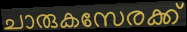
ചാരുകസേരക്ക്